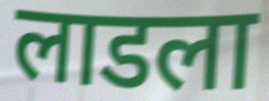
लाडला